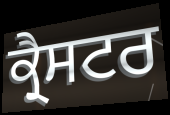
ਕ੍ਰੈਸਟਰ